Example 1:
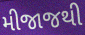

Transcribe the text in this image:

મીજાજથી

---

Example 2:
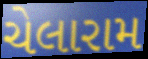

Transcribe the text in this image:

ચેલારામ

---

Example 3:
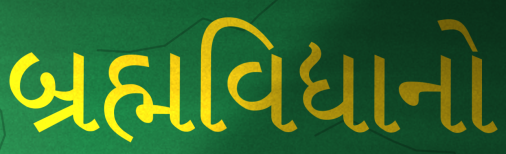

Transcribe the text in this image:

બ્રહ્મવિદ્યાનો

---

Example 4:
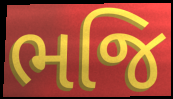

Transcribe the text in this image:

ભજિ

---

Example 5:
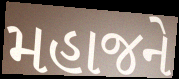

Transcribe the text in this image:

મહાજને